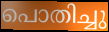
പൊതിച്ചു